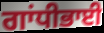
ਗਾਂਧੀਭਾਈ